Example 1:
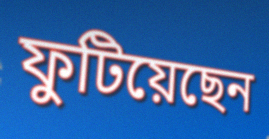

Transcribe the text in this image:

ফুটিয়েছেন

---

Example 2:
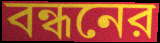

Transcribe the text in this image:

বন্ধনের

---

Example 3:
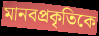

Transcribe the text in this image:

মানবপ্রকৃতিকে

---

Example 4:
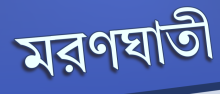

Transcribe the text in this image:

মরণঘাতী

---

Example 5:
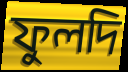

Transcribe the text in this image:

ফুলদি